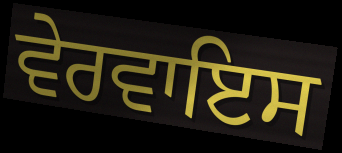
ਵੇਰਵਾਇਸ